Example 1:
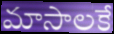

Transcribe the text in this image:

మాసాలకే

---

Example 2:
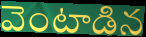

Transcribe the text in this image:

వెంటాడిన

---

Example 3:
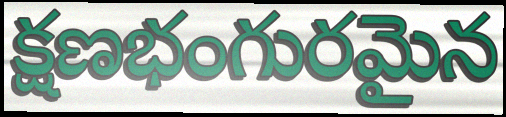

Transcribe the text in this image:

క్షణభంగురమైన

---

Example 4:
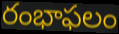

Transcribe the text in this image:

రంభాఫలం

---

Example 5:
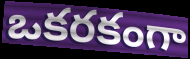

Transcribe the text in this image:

ఒకరకంగా